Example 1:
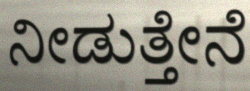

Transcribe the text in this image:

ನೀಡುತ್ತೇನೆ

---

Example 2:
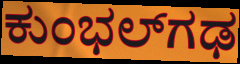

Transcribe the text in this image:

ಕುಂಭಲ್‌ಗಢ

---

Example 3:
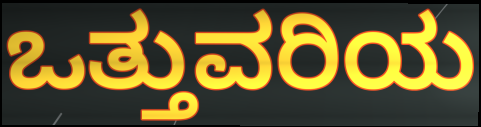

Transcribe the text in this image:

ಒತ್ತುವರಿಯ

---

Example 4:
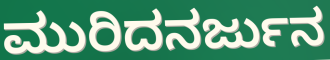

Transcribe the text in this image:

ಮುರಿದನರ್ಜುನ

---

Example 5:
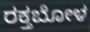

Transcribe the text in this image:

ರಕ್ತಬೋಳ